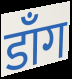
डाँग